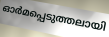
ഓർമപ്പെടുത്തലായി